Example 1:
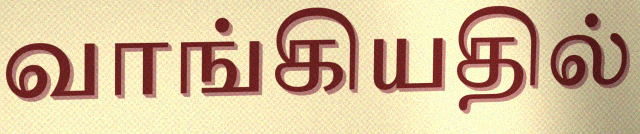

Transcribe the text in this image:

வாங்கியதில்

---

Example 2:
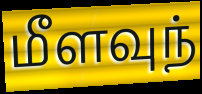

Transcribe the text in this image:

மீளவுந்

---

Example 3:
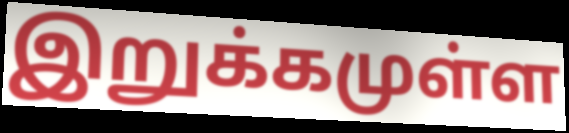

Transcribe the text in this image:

இறுக்கமுள்ள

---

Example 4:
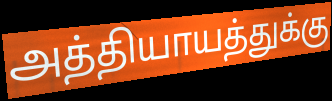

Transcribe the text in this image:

அத்தியாயத்துக்கு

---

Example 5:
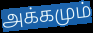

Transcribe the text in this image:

அக்கமும்